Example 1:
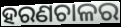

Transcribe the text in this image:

ହରଣଚାଳର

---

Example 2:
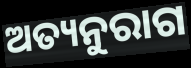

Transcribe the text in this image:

ଅତ୍ୟନୁରାଗ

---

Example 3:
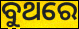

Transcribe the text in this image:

ବୁଥରେ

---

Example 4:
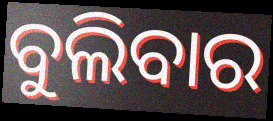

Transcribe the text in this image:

ବୁଲିବାର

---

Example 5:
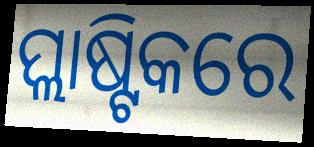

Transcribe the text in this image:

ପ୍ଲାଷ୍ଟିକରେ